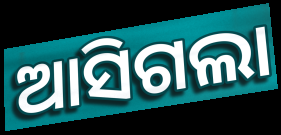
ଆସିଗଲା